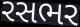
રસભર